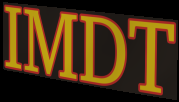
IMDT